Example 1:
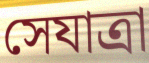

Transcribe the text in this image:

সেযাত্রা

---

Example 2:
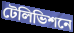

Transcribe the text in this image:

টেলিভিশনে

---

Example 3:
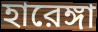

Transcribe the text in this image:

হারেঙ্গা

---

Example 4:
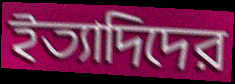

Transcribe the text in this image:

ইত্যাদিদের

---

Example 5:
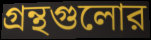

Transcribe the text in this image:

গ্রন্থগুলোর